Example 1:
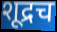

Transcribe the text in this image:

शूद्रच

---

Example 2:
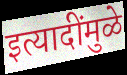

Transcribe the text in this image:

इत्यादींमुळे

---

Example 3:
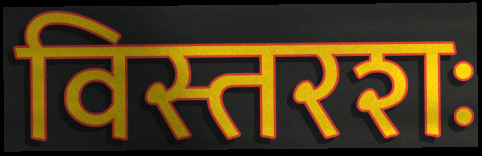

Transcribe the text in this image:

विस्तरशः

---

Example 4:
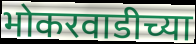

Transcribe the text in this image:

भोकरवाडीच्या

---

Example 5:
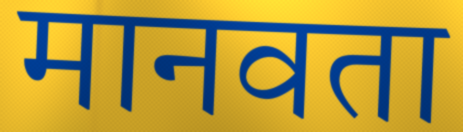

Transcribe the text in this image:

मानवता